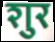
शुर